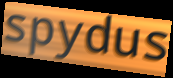
spydus